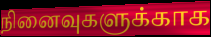
நினைவுகளுக்காக